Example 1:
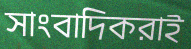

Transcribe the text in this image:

সাংবাদিকরাই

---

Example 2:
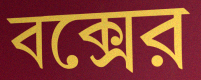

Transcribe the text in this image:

বক্সের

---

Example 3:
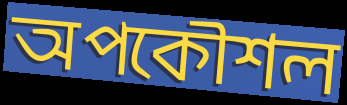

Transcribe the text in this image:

অপকৌশল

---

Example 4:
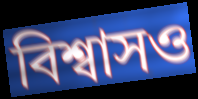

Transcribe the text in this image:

বিশ্বাসও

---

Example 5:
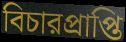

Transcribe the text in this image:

বিচারপ্রাপ্তি